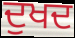
ਦੁਖਦ